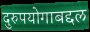
दुरुपयोगाबद्दल